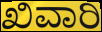
ಖಿವಾರಿ